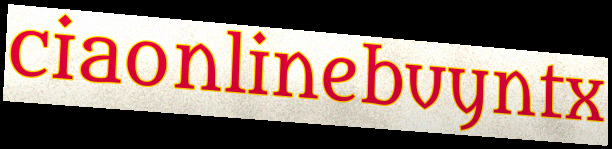
ciaonlinebuyntx